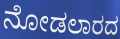
ನೋಡಲಾರದ